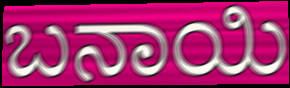
ಬನಾಯಿ